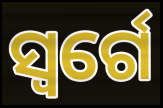
ସ୍ୱର୍ଗେ